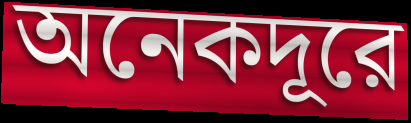
অনেকদূরে